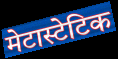
मेटास्टेटिक